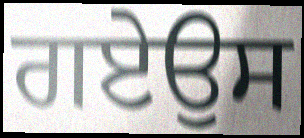
ਗਏਉਸ